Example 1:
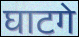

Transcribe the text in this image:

घाटगे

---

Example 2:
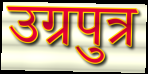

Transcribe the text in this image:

उग्रपुत्र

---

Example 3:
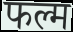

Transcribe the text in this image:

फल्म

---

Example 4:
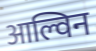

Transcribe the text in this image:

आल्विन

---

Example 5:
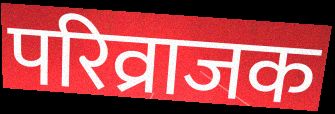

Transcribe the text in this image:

परिव्राजक